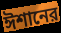
ঈশানের